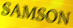
SAMSON